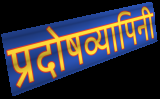
प्रदोषव्यापिनी